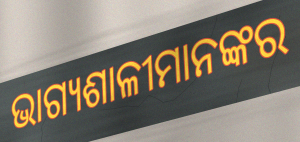
ଭାଗ୍ୟଶାଳୀମାନଙ୍କର